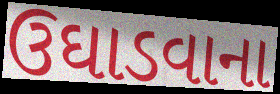
ઉઘાડવાના